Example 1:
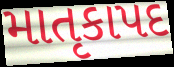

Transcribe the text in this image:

માતૃકાપદ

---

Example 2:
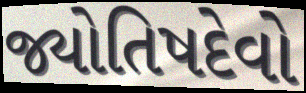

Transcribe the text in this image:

જ્યોતિષદેવો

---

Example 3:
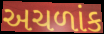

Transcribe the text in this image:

અચળાંક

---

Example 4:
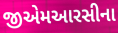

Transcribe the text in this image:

જીએમઆરસીના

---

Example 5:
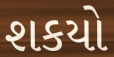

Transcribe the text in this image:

શકયો